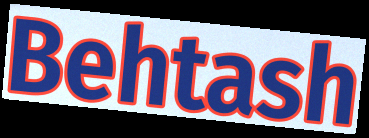
Behtash